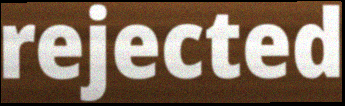
rejected